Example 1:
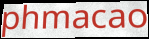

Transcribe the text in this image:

phmacao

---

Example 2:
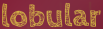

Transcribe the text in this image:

lobular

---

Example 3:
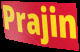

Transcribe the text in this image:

Prajin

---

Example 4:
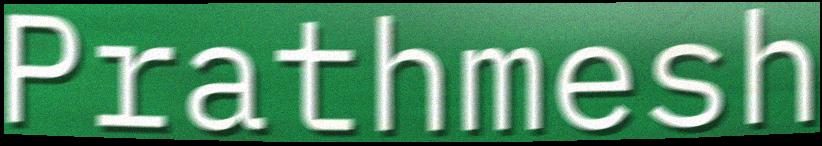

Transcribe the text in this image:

Prathmesh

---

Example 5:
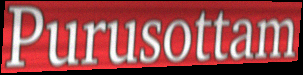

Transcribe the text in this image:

Purusottam